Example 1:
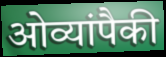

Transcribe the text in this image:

ओव्यांपैकी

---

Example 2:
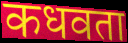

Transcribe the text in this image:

कधवता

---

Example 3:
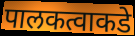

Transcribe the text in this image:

पालकत्वाकडे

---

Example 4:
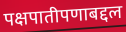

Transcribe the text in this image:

पक्षपातीपणाबद्दल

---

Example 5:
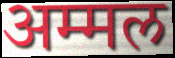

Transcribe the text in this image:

अम्मल